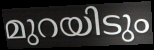
മുറയിടും